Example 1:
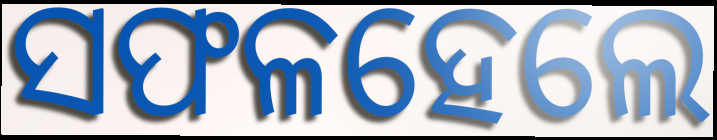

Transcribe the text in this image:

ସଫଳହେଲେ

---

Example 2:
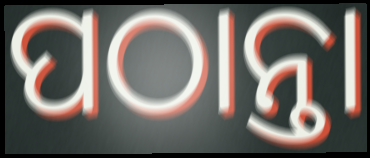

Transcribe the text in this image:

ପଠାନ୍ତା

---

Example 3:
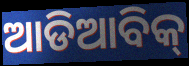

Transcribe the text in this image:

ଆଡିଆବିକ୍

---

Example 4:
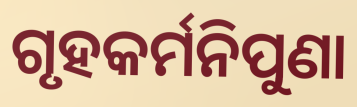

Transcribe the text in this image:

ଗୃହକର୍ମନିପୁଣା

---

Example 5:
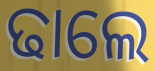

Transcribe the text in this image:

ଢାଲେ